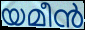
യമീൻ